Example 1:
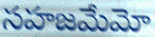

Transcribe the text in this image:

సహజమేమో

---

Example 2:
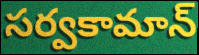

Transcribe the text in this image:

సర్వకామాన్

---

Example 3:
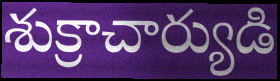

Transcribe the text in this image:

శుక్రాచార్యుడి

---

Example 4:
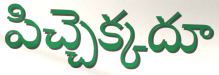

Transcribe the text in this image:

పిచ్చెక్కదూ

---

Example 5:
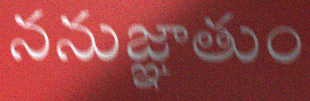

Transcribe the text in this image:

ననుజ్ఞాతుం